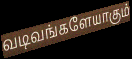
வடிவங்களேயாகும்